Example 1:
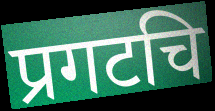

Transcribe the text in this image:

प्रगटचि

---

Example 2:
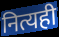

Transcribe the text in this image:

नित्यही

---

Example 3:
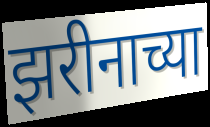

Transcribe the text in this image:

झरीनाच्या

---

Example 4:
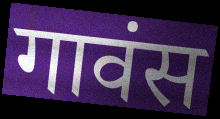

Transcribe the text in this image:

गावंस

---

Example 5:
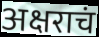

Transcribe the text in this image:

अक्षराचं